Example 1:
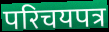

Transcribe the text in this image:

परिचयपत्र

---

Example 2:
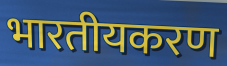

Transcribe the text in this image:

भारतीयकरण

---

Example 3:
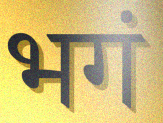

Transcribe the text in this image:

भगं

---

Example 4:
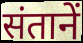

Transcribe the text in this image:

संतानें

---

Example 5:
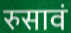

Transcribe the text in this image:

रुसावं